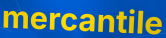
mercantile